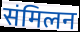
संमिलन